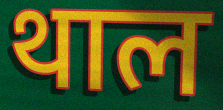
थाल